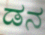
ಡನ